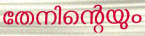
തേനിന്റെയും